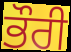
ਭੌਰੀ